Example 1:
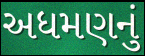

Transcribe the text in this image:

અધમણનું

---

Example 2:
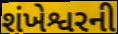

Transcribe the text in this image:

શંખેશ્વરની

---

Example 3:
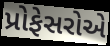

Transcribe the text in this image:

પ્રોફેસરોએ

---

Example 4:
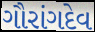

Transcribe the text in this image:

ગૌરાંગદેવ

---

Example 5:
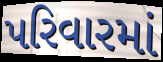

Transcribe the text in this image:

પરિવારમાં